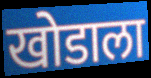
खोडाला